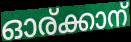
ഓര്ക്കാന്